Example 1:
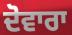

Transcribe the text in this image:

ਦੋਵਾਰਾ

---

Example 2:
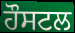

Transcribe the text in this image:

ਹੌਸਟਲ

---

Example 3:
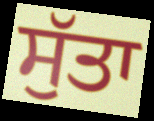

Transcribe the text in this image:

ਸੁੱਤਾ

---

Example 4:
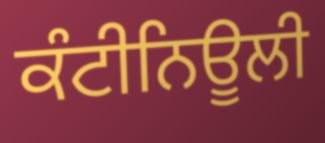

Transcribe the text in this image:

ਕੰਟੀਨਿਊਲੀ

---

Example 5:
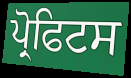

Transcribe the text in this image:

ਪ੍ਰੋਫਿਟਸ